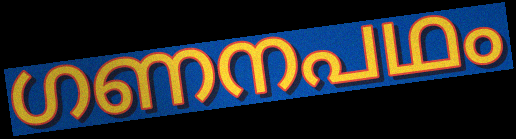
ഗണനപഥം